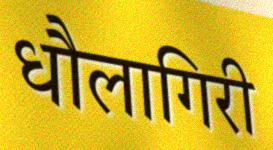
धौलागिरी